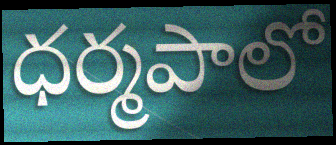
ధర్మపాలో